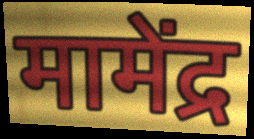
मामेंद्र